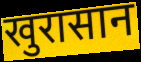
खुरासान